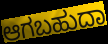
ಆಗಬಹುದಾ